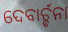
ଦେବାର୍ଚ୍ଚନା